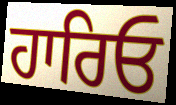
ਹਾਰਿਓ